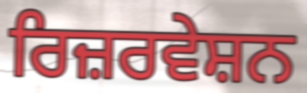
ਰਿਜ਼ਰਵੇਸ਼ਨ